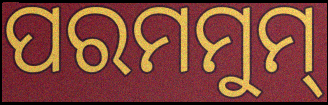
ପରମମୁମ୍